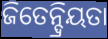
ଜିତେନ୍ଦ୍ରିୟତା